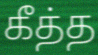
கீத்த